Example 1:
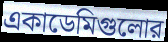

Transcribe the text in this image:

একাডেমিগুলোর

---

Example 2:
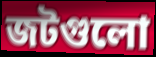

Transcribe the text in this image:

জটগুলো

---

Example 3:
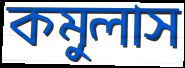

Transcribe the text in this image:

কমুলাস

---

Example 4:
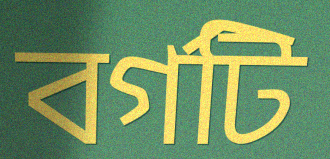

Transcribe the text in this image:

বর্গটি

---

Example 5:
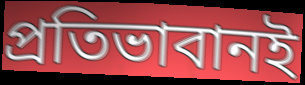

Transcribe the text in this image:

প্রতিভাবানই